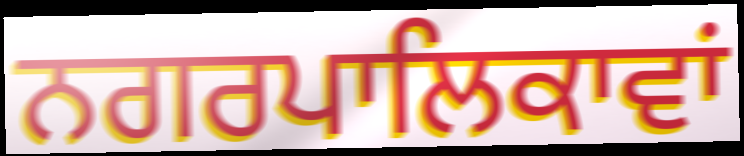
ਨਗਰਪਾਲਿਕਾਵਾਂ